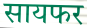
सायफर